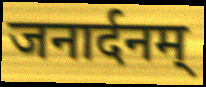
जनार्दनम्